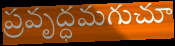
ప్రవృద్ధమగుచూ